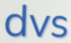
dvs